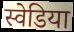
स्वेडिया